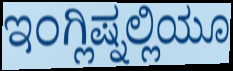
ಇಂಗ್ಲಿಷ್ನಲ್ಲಿಯೂ